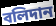
বলিদান